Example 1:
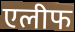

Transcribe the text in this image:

एलीफ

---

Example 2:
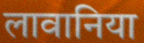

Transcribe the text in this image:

लावानिया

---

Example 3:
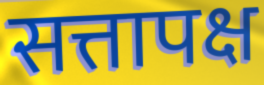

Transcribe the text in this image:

सत्तापक्ष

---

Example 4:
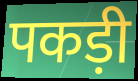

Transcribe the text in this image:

पकड़ी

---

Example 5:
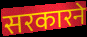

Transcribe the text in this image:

सरकारने